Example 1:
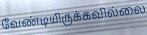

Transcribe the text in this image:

வேண்டியிருக்கவில்லை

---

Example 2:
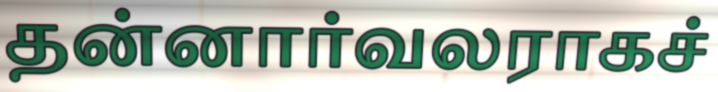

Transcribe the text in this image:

தன்னார்வலராகச்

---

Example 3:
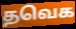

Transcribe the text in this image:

தவெக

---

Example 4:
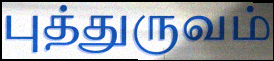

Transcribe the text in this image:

புத்துருவம்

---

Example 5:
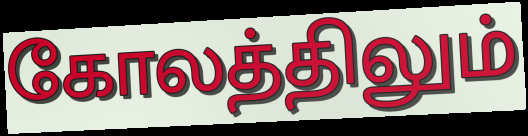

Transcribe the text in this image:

கோலத்திலும்